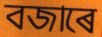
বজাৰে